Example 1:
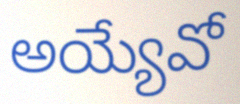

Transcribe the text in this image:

అయ్యేవో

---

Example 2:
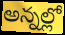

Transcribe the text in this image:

అన్నల్లో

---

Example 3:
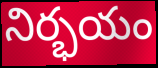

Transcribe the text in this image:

నిర్భయం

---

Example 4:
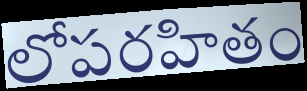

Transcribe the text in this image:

లోపరహితం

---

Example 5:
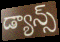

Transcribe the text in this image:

డ్యాన్స్